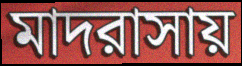
মাদরাসায়